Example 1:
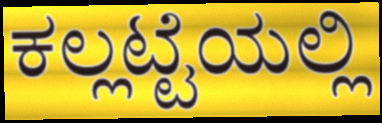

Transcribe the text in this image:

ಕಲ್ಲಟ್ಟೆಯಲ್ಲಿ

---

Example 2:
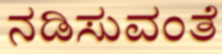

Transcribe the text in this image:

ನಡಿಸುವಂತೆ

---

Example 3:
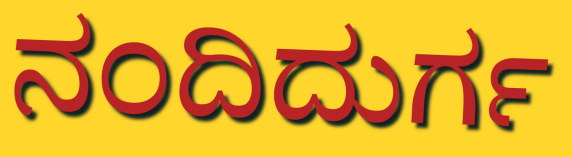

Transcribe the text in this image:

ನಂದಿದುರ್ಗ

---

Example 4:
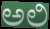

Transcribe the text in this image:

ಅಲಿ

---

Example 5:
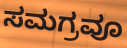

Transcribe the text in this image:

ಸಮಗ್ರವೂ